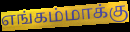
எங்கம்மாக்கு